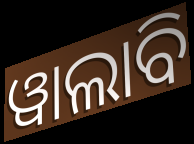
ୱାଲାବି